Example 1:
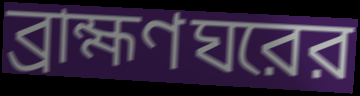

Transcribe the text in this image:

ব্রাহ্মণঘরের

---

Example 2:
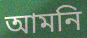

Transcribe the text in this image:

আমনি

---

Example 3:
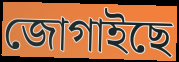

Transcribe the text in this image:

জোগাইছে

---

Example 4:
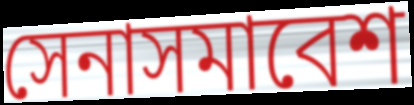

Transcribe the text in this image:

সেনাসমাবেশ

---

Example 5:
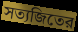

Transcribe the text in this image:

সত্যজিতের